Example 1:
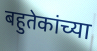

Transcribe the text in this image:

बहुतेकांच्या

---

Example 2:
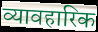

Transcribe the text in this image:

व्यावहारिक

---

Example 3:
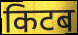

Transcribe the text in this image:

किटब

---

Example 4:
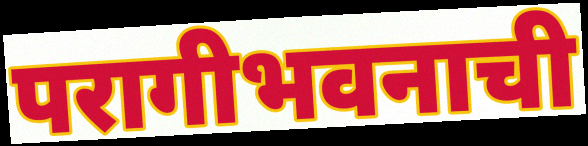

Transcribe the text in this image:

परागीभवनाची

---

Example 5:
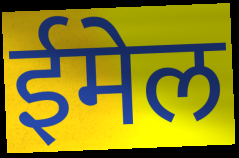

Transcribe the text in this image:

ईमेल